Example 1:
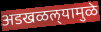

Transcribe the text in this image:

अडखळल्यामुळे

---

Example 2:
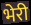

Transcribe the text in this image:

भेरी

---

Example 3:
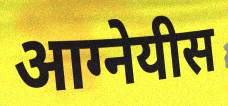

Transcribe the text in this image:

आग्नेयीस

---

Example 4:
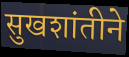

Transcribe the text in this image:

सुखशांतीने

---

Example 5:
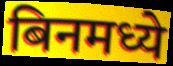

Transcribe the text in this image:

बिनमध्ये